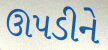
ઊપડીને